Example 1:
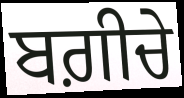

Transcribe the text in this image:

ਬਗ਼ੀਚੇ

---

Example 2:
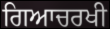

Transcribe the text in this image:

ਗਿਆਚਰਖੀ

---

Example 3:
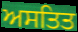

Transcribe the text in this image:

ਅਸਤਿਤ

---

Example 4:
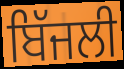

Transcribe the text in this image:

ਬਿੱਜਲੀ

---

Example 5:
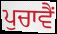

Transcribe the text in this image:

ਪੁਚਾਵੈਂ